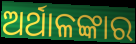
ଅର୍ଥାଳଙ୍କାର